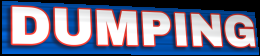
DUMPING